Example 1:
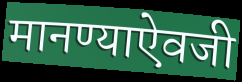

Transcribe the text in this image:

मानण्याऐवजी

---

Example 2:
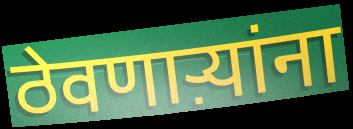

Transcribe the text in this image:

ठेवणाऱ्‍यांना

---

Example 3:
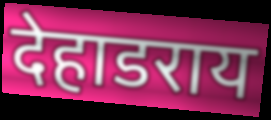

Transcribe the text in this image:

देहाडराय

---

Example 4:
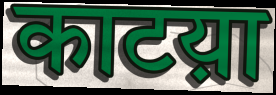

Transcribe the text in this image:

काटय़ा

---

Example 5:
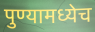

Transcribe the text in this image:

पुण्यामध्येच